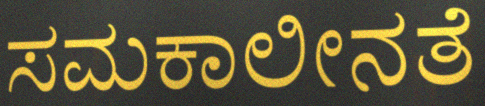
ಸಮಕಾಲೀನತೆ